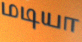
மடியா